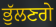
ਭੁੱਲਣਗੇ